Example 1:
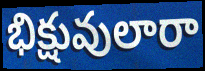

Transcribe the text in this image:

భిక్షువులారా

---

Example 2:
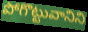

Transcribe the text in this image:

పోగొట్టువానిని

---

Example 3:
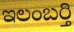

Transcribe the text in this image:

ఇలంబర్తి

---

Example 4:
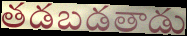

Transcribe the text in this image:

తడబడతాడు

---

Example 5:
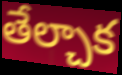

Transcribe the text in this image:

తేల్చాక